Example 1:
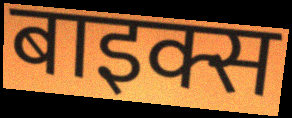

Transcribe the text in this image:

बाइक्स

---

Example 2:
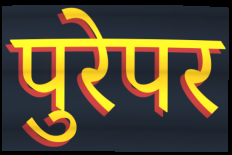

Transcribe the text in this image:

पुरेपर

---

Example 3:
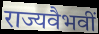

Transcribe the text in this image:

राज्यवैभवीं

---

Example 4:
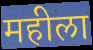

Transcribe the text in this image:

महीला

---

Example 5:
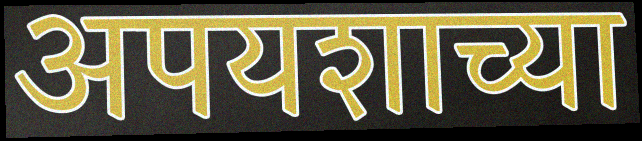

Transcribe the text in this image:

अपयशाच्या